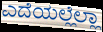
ಎದೆಯಲ್ಲೆಲ್ಲಾ